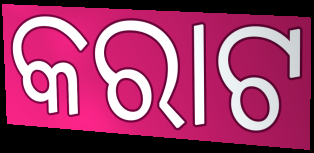
କରାଟ